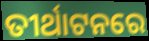
ତୀର୍ଥାଟନରେ